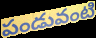
పండువంటి